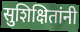
सुशिक्षितांनी